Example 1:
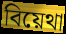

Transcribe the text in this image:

বিয়েথা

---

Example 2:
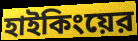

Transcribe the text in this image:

হাইকিংয়ের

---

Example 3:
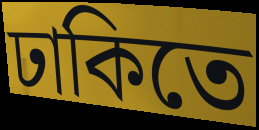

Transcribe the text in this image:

ঢাকিতে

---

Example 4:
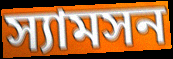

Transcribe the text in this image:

স্যামসন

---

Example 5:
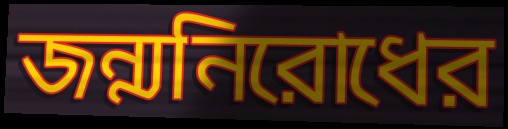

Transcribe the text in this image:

জন্মনিরোধের